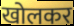
खोलकर